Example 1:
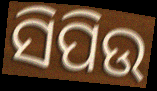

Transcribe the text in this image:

ସିପିଉ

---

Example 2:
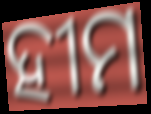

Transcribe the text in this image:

ହୀମ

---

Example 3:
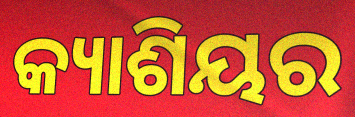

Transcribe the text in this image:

କ୍ୟାଶିୟର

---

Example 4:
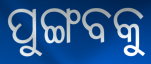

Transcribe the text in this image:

ପୁଙ୍ଗବକୁ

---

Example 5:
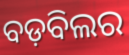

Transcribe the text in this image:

ବଡ଼ବିଲର